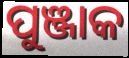
ପୁଞ୍ଜାକ